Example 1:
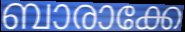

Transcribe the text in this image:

ബാരാക്കേ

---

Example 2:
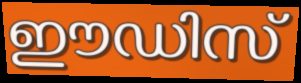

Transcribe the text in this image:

ഈഡിസ്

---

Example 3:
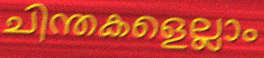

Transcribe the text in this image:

ചിന്തകളെല്ലാം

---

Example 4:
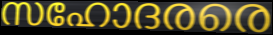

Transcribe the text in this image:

സഹോദരരെ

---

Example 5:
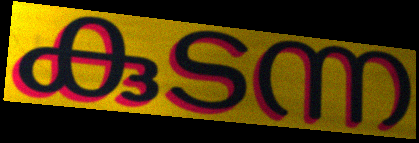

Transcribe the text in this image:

കുടന്ന